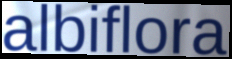
albiflora